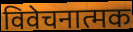
विवेचनात्‍मक